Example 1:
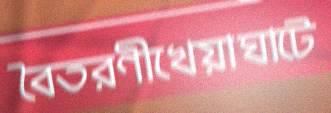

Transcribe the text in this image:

বৈতরণীখেয়াঘাটে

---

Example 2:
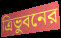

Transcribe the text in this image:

ত্রিভুবনের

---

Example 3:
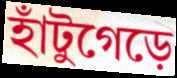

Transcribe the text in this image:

হাঁটুগেড়ে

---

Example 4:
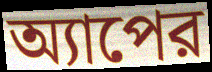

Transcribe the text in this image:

অ্যাপের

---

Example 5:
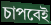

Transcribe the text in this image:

চাপবেই